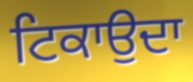
ਟਿਕਾਉਦਾ